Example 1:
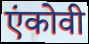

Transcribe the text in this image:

एंकोवी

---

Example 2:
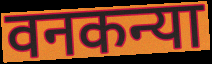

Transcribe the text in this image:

वनकन्या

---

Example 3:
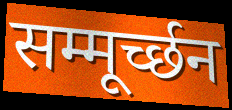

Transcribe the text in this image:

सम्मूर्च्छन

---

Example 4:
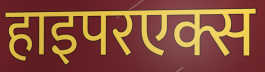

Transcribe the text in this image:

हाइपरएक्स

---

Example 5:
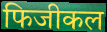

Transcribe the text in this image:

फिजीकल